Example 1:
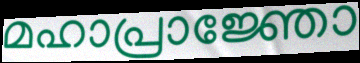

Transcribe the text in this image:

മഹാപ്രാജ്ഞോ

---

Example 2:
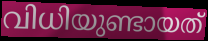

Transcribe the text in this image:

വിധിയുണ്ടായത്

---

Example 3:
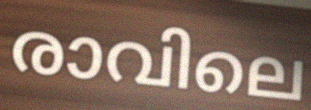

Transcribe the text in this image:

രാവിലെ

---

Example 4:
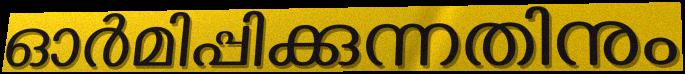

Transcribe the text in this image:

ഓർമിപ്പിക്കുന്നതിനും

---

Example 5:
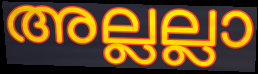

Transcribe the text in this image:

അല്ലല്ലാ